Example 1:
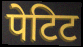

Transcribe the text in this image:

पेटिट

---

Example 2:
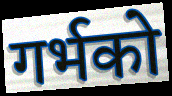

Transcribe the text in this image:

गर्भको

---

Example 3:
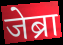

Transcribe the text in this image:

जेब्रा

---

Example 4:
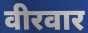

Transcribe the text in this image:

वीरवार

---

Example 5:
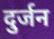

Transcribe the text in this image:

दुर्जन